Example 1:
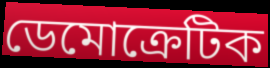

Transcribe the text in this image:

ডেমোক্রেটিক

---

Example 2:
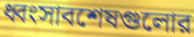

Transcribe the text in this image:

ধ্বংসাবশেষগুলোর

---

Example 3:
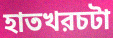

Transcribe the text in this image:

হাতখরচটা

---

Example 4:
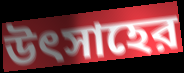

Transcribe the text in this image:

উৎসাহের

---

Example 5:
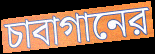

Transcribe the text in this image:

চাবাগানের